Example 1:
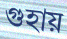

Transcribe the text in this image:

গুহায়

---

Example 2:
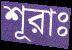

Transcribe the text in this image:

শূরাঃ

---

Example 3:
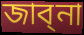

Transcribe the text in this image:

জাব্‌না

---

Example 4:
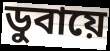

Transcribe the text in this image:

ডুবায়ে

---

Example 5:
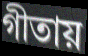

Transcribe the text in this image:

গীতায়